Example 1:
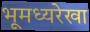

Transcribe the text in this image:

भूमध्यरेखा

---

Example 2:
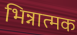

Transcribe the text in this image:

भिन्नात्मक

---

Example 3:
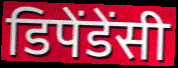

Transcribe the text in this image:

डिपेंडेंसी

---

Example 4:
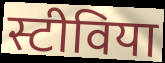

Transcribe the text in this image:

स्‍टीविया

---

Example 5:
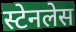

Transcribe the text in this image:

स्टेनलेस